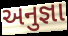
અનુજ્ઞા